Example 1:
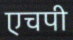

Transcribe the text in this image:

एचपी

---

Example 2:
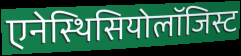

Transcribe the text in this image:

एनेस्थिसियोलॉजिस्ट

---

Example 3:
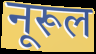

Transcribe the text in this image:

नूरूल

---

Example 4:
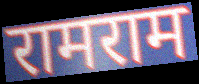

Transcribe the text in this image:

रामराम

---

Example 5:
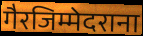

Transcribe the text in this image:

गैरजिम्मेदराना